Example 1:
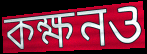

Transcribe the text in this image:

কক্ষনও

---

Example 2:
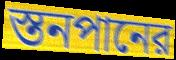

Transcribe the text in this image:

স্তনপানের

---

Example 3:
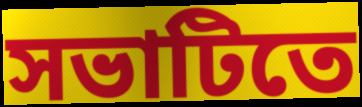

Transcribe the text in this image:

সভাটিতে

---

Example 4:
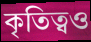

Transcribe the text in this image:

কৃতিত্বও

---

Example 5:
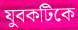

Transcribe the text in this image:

যুবকটিকে